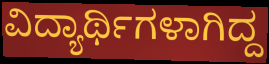
ವಿದ್ಯಾರ್ಥಿಗಳಾಗಿದ್ದ